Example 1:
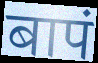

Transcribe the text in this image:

बापं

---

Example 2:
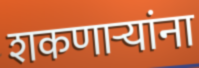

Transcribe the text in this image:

शकणार्‍यांना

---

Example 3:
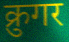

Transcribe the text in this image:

क्रुगर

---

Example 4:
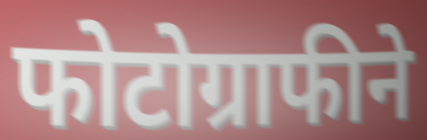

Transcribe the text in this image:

फोटोग्राफीने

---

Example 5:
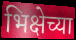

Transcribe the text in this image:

भिक्षेच्या